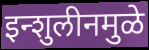
इन्शुलीनमुळे